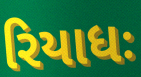
રિયાધઃ